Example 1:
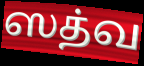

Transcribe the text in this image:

ஸத்வ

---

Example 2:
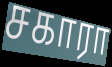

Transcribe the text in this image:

சகாரா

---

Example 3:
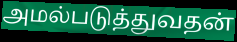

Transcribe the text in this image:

அமல்படுத்துவதன்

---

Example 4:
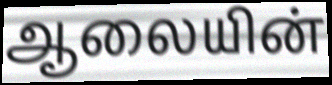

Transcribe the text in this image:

ஆலையின்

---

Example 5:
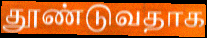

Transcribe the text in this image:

தூண்டுவதாக